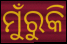
ମୁଁରୁକି